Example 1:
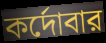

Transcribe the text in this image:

কর্দোবার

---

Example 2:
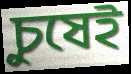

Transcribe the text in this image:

চুষেই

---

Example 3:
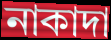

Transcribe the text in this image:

নাকাদা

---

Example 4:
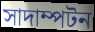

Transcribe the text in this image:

সাদাম্পটন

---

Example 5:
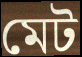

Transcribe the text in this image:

মেট